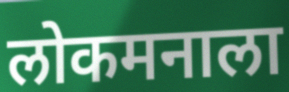
लोकमनाला